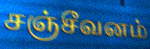
சஞ்சீவனம்